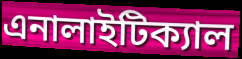
এনালাইটিক্যাল